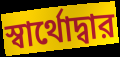
স্বার্থোদ্বার